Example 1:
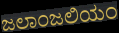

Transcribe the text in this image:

ಜಲಾಂಜಲಿಯಂ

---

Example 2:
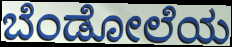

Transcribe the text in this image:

ಬೆಂಡೋಲೆಯ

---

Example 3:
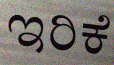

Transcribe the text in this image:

ಇರಿಕೆ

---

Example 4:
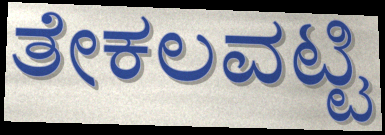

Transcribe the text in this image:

ತೇಕಲವಟ್ಟಿ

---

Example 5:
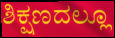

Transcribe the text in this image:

ಶಿಕ್ಷಣದಲ್ಲೂ